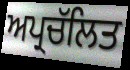
ਅਪ੍ਰਚੱਲਿਤ